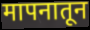
मापनातून